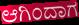
ಆಗಿಂದಾಗ